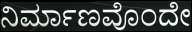
ನಿರ್ಮಾಣವೊಂದೇ